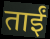
ताईं